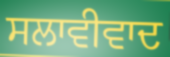
ਸਲਾਵੀਵਾਦ